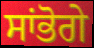
ਸਾਂਭੋਗੇ